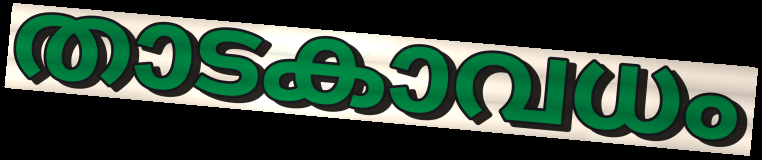
താടകാവധം